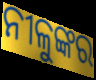
ନୀଳୁଙ୍କର